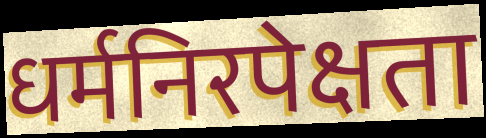
धर्मनिरपेक्षता